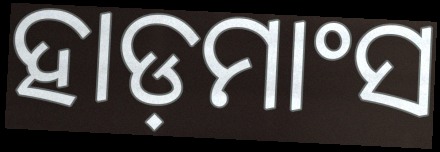
ହାଡ଼ମାଂସ